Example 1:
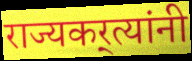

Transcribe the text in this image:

राज्यकर्त्यांनी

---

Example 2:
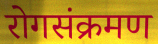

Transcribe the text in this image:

रोगसंक्रमण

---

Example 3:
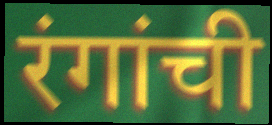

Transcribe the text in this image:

रंगांची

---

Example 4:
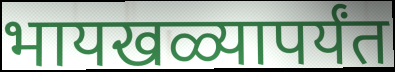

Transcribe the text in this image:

भायखळ्यापर्यंत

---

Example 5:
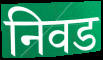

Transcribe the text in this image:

निवड